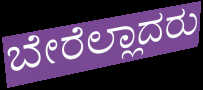
ಬೇರೆಲ್ಲಾದರು